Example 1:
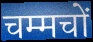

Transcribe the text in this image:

चम्मचों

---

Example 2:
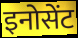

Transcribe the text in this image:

इनोसेंट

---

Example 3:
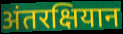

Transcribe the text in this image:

अंतरक्षियान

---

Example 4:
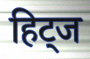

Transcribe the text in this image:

हिट्ज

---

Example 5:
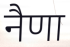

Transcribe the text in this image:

नैणा